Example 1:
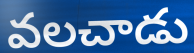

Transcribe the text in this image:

వలచాడు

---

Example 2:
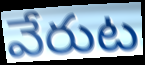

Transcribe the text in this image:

వేరుట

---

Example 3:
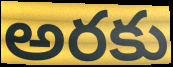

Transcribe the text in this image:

అరకు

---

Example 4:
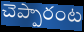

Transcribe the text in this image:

చెప్పారంట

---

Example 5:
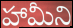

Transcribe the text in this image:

హామీని